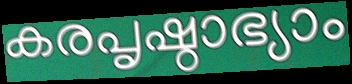
കരപൃഷ്ഠാഭ്യാം